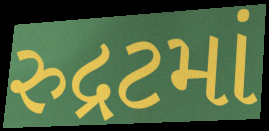
રુદ્રટમાં